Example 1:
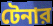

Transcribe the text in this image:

টেনার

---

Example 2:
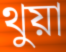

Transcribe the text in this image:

থুয়া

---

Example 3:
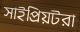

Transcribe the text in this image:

সাইপ্রিয়টরা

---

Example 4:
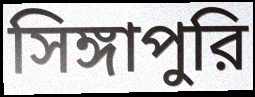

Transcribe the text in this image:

সিঙ্গাপুরি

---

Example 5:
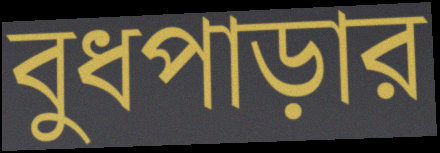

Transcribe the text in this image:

বুধপাড়ার